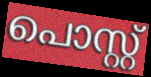
പൊസ്റ്റ്